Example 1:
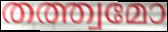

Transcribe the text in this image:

തത്ത്വമോ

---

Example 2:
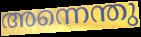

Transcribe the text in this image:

അന്നെന്തു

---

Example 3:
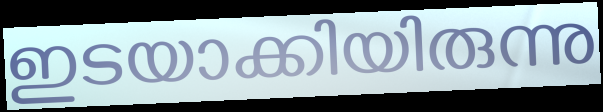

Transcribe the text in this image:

ഇടയാക്കിയിരുന്നു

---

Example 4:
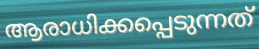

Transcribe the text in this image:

ആരാധിക്കപ്പെടുന്നത്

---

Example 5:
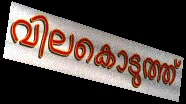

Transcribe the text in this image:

വിലകൊടുത്ത്